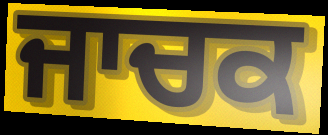
ਜਾਚਕ